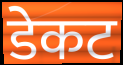
डेकट